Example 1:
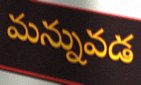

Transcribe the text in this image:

మన్నువడ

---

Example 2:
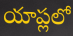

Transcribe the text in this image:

యాప్లలో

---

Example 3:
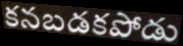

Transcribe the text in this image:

కనబడకపోడు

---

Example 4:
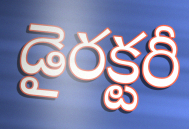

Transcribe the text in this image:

డైరక్టరీ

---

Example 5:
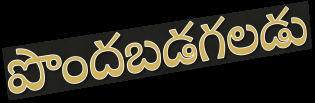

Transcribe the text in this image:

పొందబడగలడు